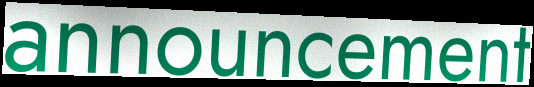
announcement